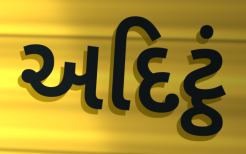
અદિટ્ઠં